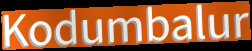
Kodumbalur